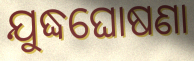
ଯୁଦ୍ଧଘୋଷଣା